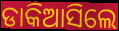
ଡାକିଆସିଲେ